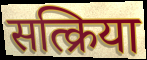
सत्क्रिया